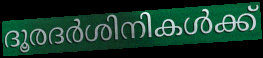
ദൂരദർശിനികൾക്ക്